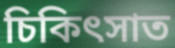
চিকিৎসাত